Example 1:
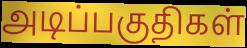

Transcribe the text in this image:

அடிப்பகுதிகள்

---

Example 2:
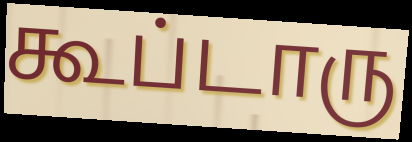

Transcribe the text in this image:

கூப்டாரு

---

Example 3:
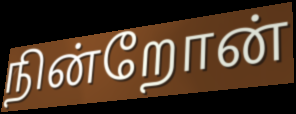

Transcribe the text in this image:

நின்றோன்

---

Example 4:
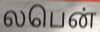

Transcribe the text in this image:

லபென்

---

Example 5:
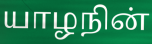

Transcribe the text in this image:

யாழநின்